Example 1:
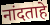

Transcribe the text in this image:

नांदताहे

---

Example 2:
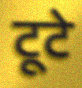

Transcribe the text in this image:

टूटे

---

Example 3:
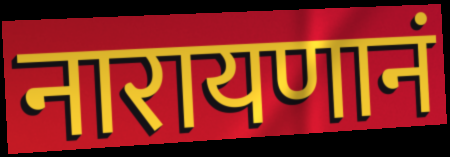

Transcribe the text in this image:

नारायणानं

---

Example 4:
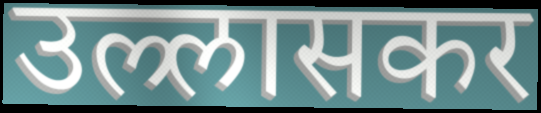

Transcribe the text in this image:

उल्लासकर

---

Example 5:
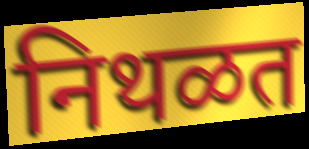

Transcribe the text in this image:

निथळत